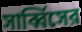
সার্ব্বিসের